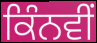
ਕਿੰਨਵੀਂ